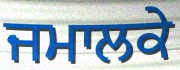
ਜਮਾਲਕੇ